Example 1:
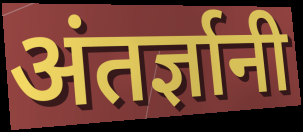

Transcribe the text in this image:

अंतर्ज्ञानी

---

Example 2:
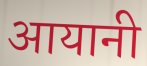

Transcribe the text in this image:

आयानी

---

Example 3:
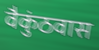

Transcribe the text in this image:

वैकुंठवास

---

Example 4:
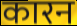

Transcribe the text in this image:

कारन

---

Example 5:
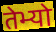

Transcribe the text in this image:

तेभ्यो